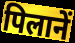
पिलानें